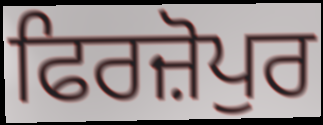
ਫਿਰਜ਼ੋਪੁਰ